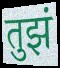
तुझं